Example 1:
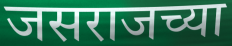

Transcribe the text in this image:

जसराजच्या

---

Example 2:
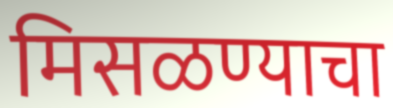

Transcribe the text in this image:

मिसळण्याचा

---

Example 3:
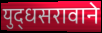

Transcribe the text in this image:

युद्धसरावाने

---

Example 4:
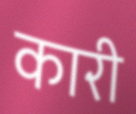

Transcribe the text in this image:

कारी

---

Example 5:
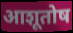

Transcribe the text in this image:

आशूतोष